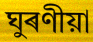
ঘুৰণীয়া